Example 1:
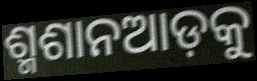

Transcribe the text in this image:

ଶ୍ମଶାନଆଡ଼କୁ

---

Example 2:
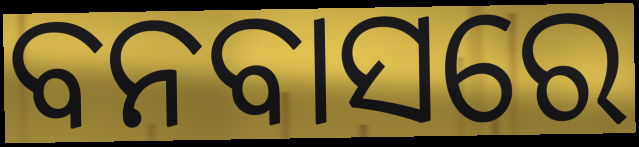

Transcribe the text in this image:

ବନବାସରେ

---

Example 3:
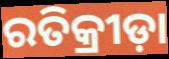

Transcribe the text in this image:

ରତିକ୍ରୀଡ଼ା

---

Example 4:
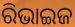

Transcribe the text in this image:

ରିଭାଇଜ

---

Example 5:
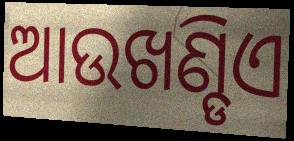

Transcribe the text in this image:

ଆଉଖଣ୍ଡିଏ